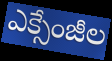
ఎక్సేంజీల